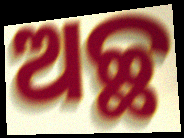
ଅଚ୍ଛ